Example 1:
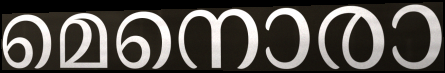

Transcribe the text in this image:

മെനൊരാ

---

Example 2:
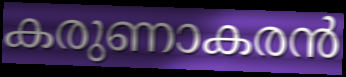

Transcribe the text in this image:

കരുണാകരൻ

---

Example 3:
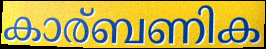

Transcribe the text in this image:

കാര്ബണിക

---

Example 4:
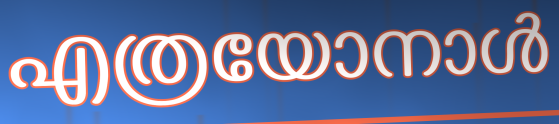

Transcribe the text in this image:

എത്രയോനാൾ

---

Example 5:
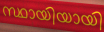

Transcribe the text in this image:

സ്ഥായിയായി